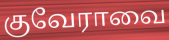
குவேராவை